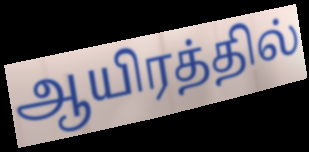
ஆயிரத்தில்